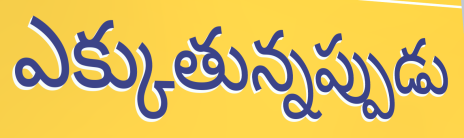
ఎక్కుతున్నప్పుడు